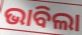
ଭାବିଲା